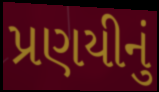
પ્રણયીનું